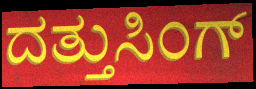
ದತ್ತುಸಿಂಗ್